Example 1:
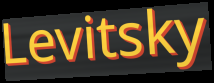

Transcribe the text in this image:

Levitsky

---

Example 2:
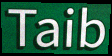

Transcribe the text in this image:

Taib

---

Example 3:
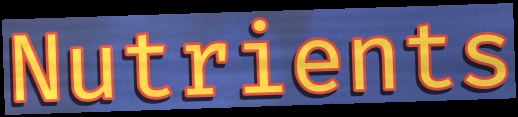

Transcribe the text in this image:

Nutrients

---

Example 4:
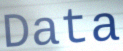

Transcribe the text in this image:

Data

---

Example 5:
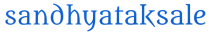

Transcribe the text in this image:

sandhyataksale